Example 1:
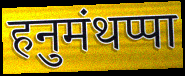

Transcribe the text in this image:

हनुमंथप्पा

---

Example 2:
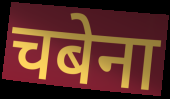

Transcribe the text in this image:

चबेना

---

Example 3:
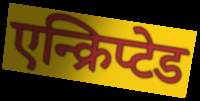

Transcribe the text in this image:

एन्क्रिप्टेड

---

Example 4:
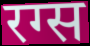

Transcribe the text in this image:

रग्स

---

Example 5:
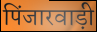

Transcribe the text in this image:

पिंजारवाड़ी